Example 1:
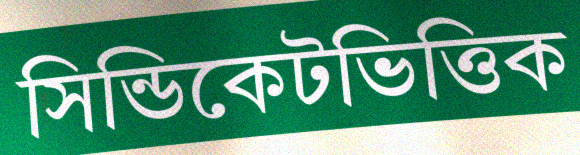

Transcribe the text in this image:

সিন্ডিকেটভিত্তিক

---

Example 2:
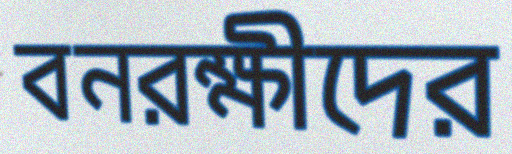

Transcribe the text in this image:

বনরক্ষীদের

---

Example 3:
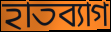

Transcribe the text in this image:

হাতব্যাগ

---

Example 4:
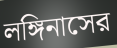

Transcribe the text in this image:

লঙ্গিনাসের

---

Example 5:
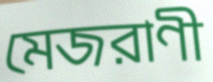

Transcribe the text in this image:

মেজরাণী